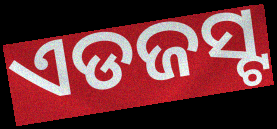
ଏଡଜସ୍ଟ